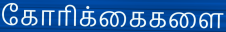
கோரிக்கைகளை